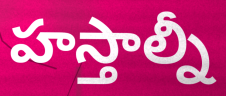
హస్తాల్నీ